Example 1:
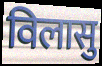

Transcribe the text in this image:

विलासु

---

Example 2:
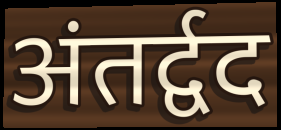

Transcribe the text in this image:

अंतर्द्वद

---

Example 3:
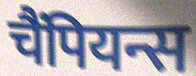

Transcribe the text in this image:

चैंपियन्स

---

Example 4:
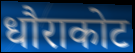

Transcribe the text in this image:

धौराकोट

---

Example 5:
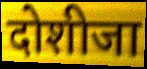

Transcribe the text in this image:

दोशीजा